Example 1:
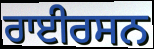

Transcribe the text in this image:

ਰਾਈਰਸਨ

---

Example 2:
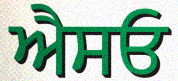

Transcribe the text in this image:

ਐਸਓ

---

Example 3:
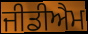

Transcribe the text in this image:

ਜੀਡੀਐਮ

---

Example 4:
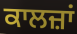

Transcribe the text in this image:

ਕਾਲਜ਼ਾਂ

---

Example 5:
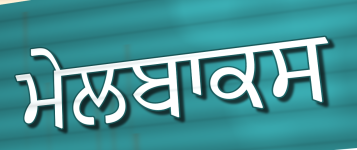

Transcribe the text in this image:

ਮੇਲਬਾਕਸ